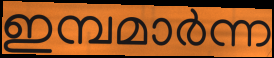
ഇമ്പമാർന്ന